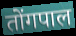
तोंगपाल